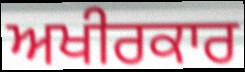
ਅਖੀਰਕਾਰ